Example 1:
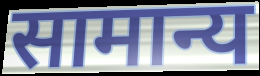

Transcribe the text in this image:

सामान्य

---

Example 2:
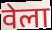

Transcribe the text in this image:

वेला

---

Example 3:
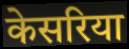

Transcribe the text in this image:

केसरिया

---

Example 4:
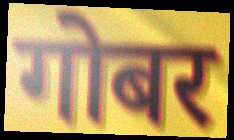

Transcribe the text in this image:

गोबर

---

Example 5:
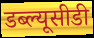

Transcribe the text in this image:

डब्ल्यूसीडी